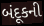
બંદૂકની